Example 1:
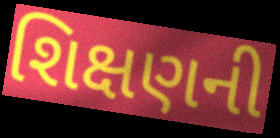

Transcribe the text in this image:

શિક્ષણની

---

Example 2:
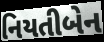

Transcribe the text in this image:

નિયતીબેન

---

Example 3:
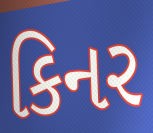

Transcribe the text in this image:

કિનર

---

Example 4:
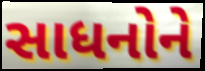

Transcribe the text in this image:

સાધનોને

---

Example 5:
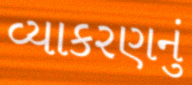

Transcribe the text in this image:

વ્યાકરણનું